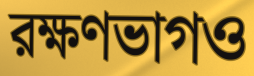
রক্ষণভাগও